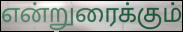
என்றுரைக்கும்